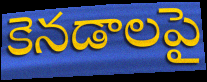
కెనడాలపై